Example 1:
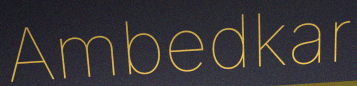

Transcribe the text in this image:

Ambedkar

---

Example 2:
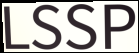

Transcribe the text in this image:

LSSP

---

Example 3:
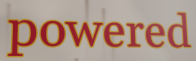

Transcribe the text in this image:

powered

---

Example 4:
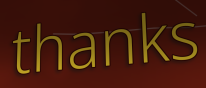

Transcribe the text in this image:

thanks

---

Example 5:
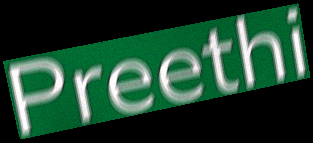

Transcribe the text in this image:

Preethi